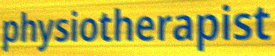
physiotherapist